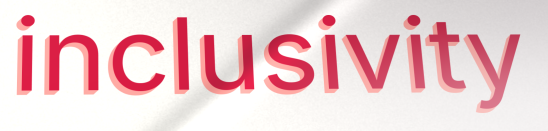
inclusivity